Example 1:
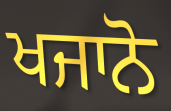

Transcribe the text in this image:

ਖਜਾਨੋ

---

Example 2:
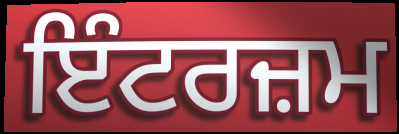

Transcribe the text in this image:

ਇੰਟਰਜ਼ਮ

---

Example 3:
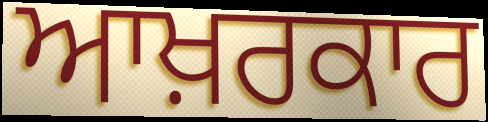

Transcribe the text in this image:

ਆਖ਼ਰਕਾਰ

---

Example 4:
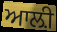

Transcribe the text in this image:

ਆਲ਼ੀ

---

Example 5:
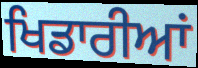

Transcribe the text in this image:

ਖਿਡਾਰੀਆਂ